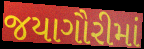
જયાગૌરીમાં